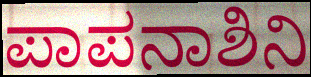
ಪಾಪನಾಶಿನಿ